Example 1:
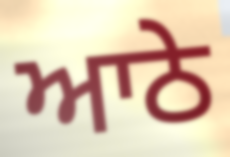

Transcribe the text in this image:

ਆਠੇ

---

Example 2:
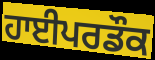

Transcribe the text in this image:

ਹਾਈਪਰਡੌਕ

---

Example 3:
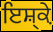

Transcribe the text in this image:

ਇਸ਼੍ਕ਼ੇ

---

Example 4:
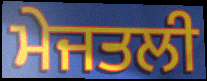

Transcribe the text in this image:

ਮੇਜਤਲੀ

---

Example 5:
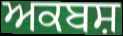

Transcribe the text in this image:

ਅਕਬਸ਼